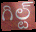
గిల్ట్